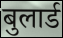
बुलार्ड